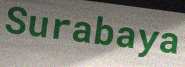
Surabaya